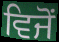
ਵਿਜੋਂ